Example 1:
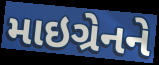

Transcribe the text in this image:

માઇગ્રેનને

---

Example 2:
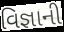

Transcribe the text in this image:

વિજ્ઞાની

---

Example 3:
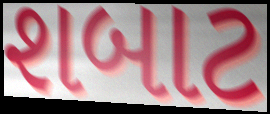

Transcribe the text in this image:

શબાટ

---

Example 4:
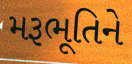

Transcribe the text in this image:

મરૂભૂતિને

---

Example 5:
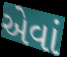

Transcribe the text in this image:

એવાં